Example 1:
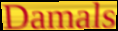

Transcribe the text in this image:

Damals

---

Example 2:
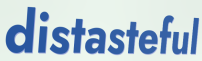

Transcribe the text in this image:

distasteful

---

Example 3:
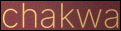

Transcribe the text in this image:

chakwa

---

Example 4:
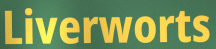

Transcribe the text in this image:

Liverworts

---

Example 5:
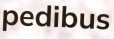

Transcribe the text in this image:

pedibus